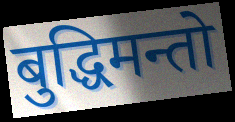
बुद्धिमन्तो